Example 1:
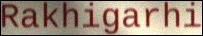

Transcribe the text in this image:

Rakhigarhi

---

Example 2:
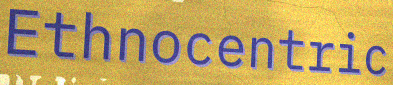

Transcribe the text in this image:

Ethnocentric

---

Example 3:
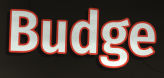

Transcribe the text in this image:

Budge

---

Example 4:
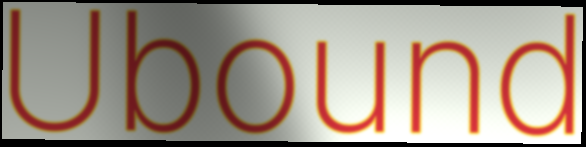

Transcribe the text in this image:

Ubound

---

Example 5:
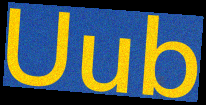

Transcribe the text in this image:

Uub